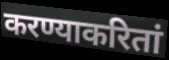
करण्याकरितां